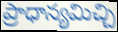
ప్రాధాన్యమిచ్చి